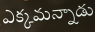
ఎక్కమన్నాడు